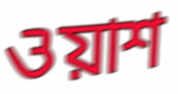
ওয়াশ